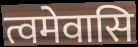
त्वमेवासि